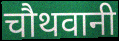
चौथवानी